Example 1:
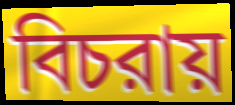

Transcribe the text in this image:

বিচরায়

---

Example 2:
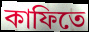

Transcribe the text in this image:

কাফিতে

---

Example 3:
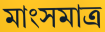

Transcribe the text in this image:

মাংসমাত্র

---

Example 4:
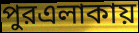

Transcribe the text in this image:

পুরএলাকায়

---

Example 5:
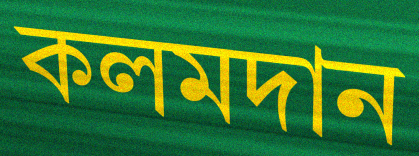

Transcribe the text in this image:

কলমদান